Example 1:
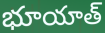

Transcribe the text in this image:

భూయాత్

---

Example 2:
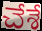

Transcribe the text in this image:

చేశే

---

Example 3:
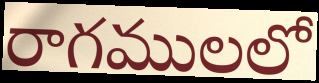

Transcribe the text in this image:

రాగములలో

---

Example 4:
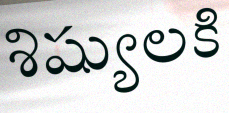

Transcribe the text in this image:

శిష్యులకి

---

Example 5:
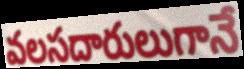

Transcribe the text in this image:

వలసదారులుగానే